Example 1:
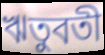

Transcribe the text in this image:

ঋতুবতী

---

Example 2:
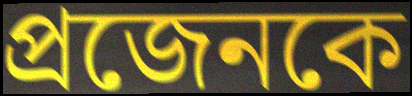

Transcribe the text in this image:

প্রজেনকে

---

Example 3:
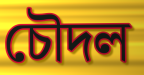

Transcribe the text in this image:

চৌদল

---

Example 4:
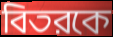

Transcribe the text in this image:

বিতরকে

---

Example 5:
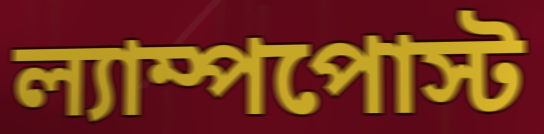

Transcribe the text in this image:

ল্যাম্পপোস্ট